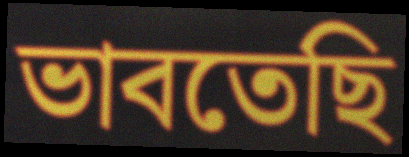
ভাবতেছি